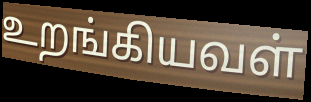
உறங்கியவள்